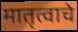
मातृत्वाचे